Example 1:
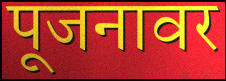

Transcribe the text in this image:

पूजनावर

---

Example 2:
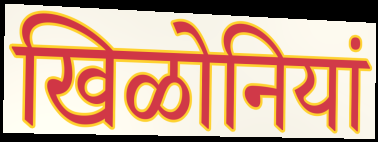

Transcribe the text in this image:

खिळोनियां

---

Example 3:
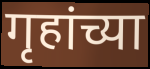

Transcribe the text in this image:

गृहांच्या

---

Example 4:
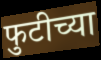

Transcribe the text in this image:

फुटीच्या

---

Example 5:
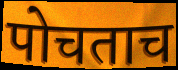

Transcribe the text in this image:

पोचताच